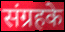
संग्रहके